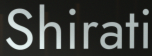
Shirati